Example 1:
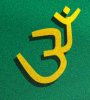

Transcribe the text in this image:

ঔঁ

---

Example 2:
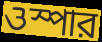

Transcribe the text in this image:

ওস্পার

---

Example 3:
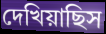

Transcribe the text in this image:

দেখিয়াছিস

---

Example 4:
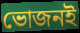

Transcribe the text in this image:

ভোজনই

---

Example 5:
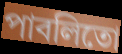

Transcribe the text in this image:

পাবলিতো